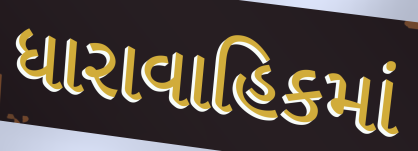
ધારાવાહિકમાં